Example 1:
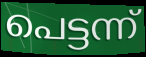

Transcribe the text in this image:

പെട്ടന്ന്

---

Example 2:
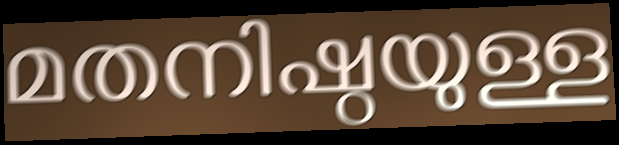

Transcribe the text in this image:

മതനിഷ്ഠയുള്ള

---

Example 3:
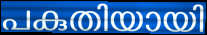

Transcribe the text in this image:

പകുതിയായി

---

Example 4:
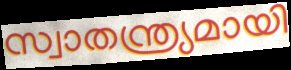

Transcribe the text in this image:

സ്വാതന്ത്ര്യമായി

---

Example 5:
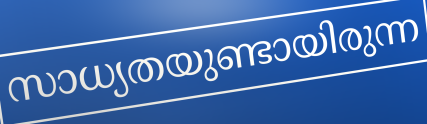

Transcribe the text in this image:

സാധ്യതയുണ്ടായിരുന്ന